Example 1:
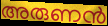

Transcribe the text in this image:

അരുണൻ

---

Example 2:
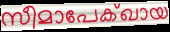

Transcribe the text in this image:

സീമാപേക്ഖായ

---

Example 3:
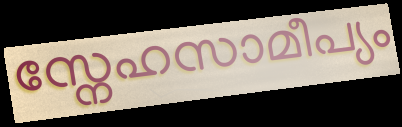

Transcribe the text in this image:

സ്നേഹസാമീപ്യം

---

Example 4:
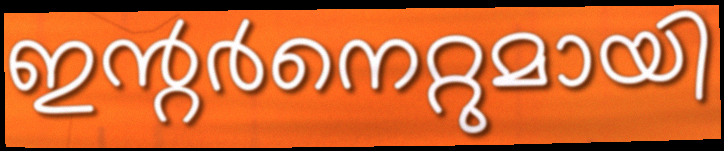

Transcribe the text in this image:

ഇന്റർനെറ്റുമായി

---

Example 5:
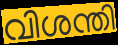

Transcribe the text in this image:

വിശന്തി